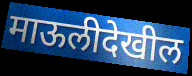
माऊलीदेखील